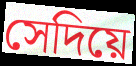
সেদিয়ে